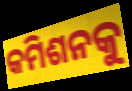
କମିଶନକୁ